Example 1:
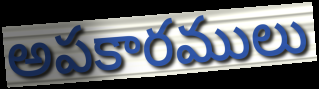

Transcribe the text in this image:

అపకారములు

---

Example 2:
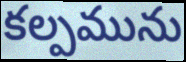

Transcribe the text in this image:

కల్పమును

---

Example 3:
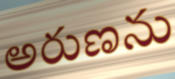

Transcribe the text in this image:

అరుణను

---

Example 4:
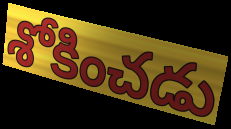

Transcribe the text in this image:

శోకించడు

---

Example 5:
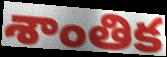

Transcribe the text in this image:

శాంతిక